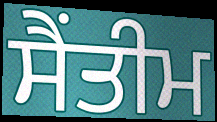
ਸੈਂਤੀਮ